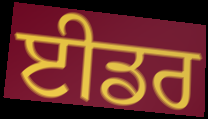
ਈਡਰ